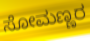
ಸೋಮಣ್ಣರ